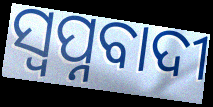
ସ୍ୱପ୍ନବାଦୀ